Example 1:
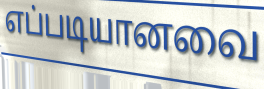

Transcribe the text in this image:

எப்படியானவை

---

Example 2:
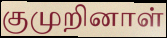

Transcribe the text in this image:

குமுறினாள்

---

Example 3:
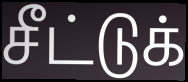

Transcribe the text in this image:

சீட்டுக்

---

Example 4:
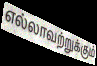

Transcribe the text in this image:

எல்லாவற்றுக்கும்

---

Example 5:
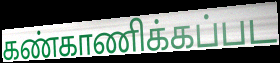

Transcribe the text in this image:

கண்காணிக்கப்பட